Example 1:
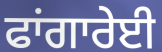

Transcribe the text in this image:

ਫਾਂਗਾਰੇਈ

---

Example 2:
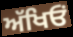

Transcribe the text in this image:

ਅੱਖਿਓਂ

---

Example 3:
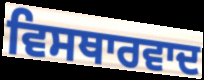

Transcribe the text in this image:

ਵਿਸਥਾਰਵਾਦ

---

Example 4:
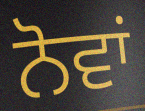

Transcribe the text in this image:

ਨੋਵਾਂ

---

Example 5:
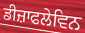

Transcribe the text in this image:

ਡੀਜ਼ਾਫਲੇਵਿਨ